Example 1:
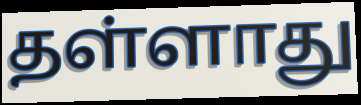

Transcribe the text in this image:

தள்ளாது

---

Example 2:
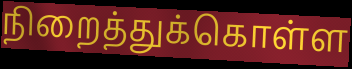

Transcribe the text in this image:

நிறைத்துக்கொள்ள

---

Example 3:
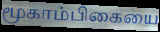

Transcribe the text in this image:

மூகாம்பிகையை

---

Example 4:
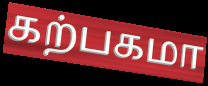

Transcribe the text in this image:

கற்பகமா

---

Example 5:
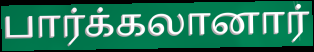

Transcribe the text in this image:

பார்க்கலானார்